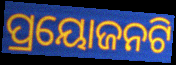
ପ୍ରୟୋଜନଟି